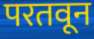
परतवून